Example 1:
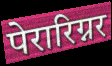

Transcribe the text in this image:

पेरारिग्नर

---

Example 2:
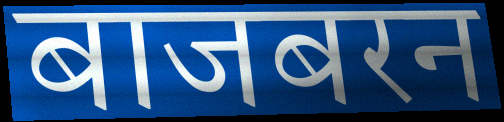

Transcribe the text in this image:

बाजबरन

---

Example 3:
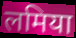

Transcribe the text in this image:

लमिया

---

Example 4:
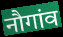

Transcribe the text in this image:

नौगांव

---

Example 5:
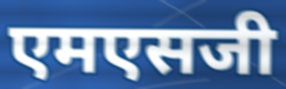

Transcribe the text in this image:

एमएसजी